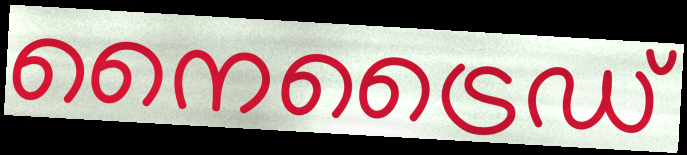
നൈട്രൈഡ്